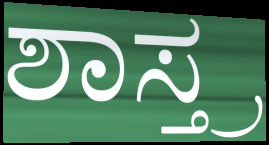
ಶಾಸ್ತ್ರ